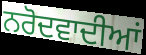
ਨਰੋਦਵਾਦੀਆਂ